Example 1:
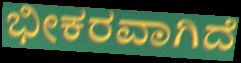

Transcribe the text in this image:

ಭೀಕರವಾಗಿದೆ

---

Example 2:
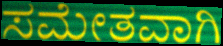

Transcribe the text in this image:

ಸಮೇತವಾಗಿ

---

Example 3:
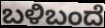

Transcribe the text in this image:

ಬಳಿಬಂದೆ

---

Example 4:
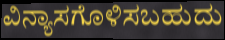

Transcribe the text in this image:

ವಿನ್ಯಾಸಗೊಳಿಸಬಹುದು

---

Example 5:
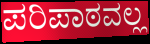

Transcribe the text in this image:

ಪರಿಪಾಠವಲ್ಲ